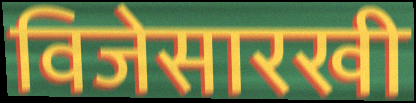
विजेसारखी